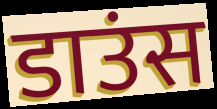
डाउंस